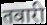
तवारी